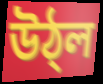
উঠ্ল